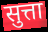
सुत्ता